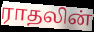
ராதலின்